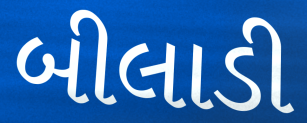
બીલાડી